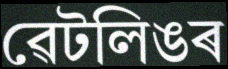
ৱেটলিঙৰ